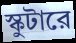
স্কুটারে